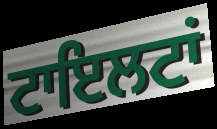
ਟਾਇਲਟਾਂ